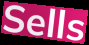
Sells